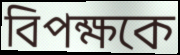
বিপক্ষকে